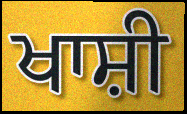
ਖਾਸ਼ੀ